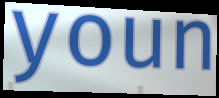
youn